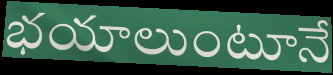
భయాలుంటూనే